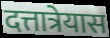
दत्तात्रेयास